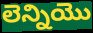
లెన్నియొ